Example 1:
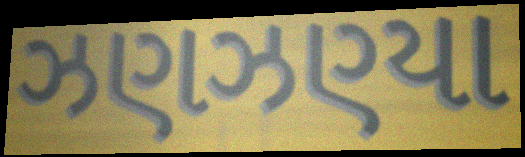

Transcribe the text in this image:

ઝણઝણ્યા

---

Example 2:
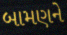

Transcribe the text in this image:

બામણને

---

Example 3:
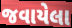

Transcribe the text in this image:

જવાયેલા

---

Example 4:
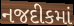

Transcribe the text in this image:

નજદીકમાં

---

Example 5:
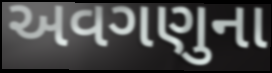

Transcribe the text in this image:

અવગણુના